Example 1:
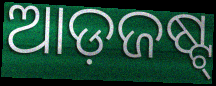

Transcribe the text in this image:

ଆଡ଼ଜଷ୍ଟ୍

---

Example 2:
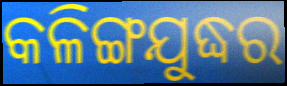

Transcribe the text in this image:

କଳିଙ୍ଗଯୁଦ୍ଧର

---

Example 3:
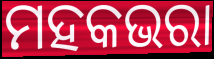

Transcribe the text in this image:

ମହକଭରା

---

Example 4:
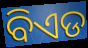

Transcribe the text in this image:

ବିଏଡ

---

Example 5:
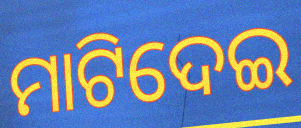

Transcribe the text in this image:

ମାଟିଦେଇ